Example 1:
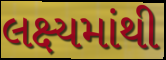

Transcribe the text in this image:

લક્ષ્યમાંથી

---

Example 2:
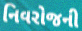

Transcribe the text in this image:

નિવરોજની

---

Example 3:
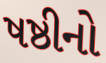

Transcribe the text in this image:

ષષ્ઠીનો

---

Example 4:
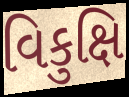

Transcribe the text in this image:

વિકુક્ષિ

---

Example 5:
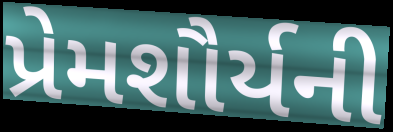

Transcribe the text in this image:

પ્રેમશૌર્યની